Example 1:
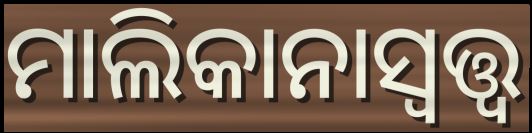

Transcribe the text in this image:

ମାଲିକାନାସ୍ୱତ୍ତ୍ୱ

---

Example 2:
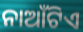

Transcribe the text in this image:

ନାଆଁଟିଏ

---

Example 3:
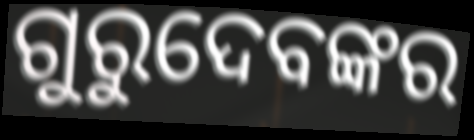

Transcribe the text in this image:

ଗୁରୁଦେବଙ୍କର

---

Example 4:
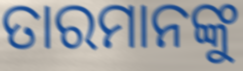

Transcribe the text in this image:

ତାରମାନଙ୍କୁ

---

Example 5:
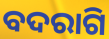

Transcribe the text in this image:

ବଦରାଗି